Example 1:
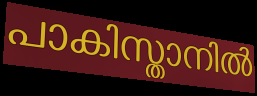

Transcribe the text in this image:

പാകിസ്താനിൽ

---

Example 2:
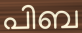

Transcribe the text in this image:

പിബ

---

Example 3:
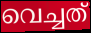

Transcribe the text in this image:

വെച്ചത്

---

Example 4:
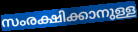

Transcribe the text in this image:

സംരക്ഷിക്കാനുള്ള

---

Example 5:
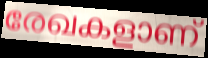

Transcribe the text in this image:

രേഖകളാണ്